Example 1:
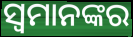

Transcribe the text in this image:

ସ୍ୱମାନଙ୍କର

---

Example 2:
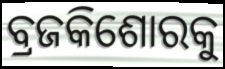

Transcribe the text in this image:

ବ୍ରଜକିଶୋରକୁ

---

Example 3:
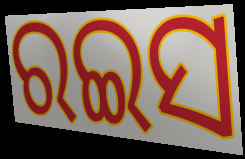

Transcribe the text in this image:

ରଇସ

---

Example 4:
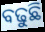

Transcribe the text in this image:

ବଢୁଛି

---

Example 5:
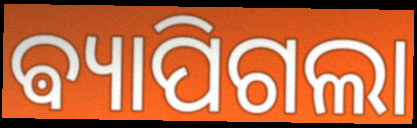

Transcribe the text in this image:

ଵ୍ୟାପିଗଲା